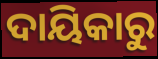
ଦାୟିକାରୁ